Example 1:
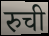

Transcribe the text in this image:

रुची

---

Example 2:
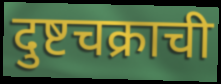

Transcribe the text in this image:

दुष्टचक्राची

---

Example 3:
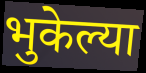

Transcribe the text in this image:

भुकेल्या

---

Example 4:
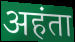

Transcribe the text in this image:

अहंता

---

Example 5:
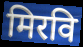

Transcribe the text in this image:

मिरवि